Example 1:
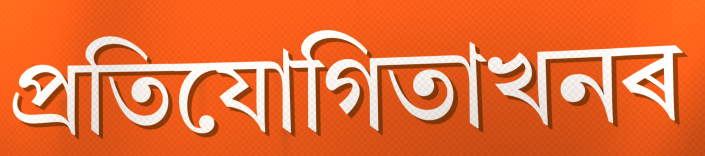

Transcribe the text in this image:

প্ৰতিযোগিতাখনৰ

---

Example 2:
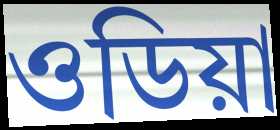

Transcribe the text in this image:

ওডিয়া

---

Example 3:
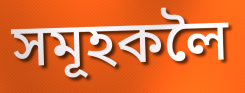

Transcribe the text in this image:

সমূহকলৈ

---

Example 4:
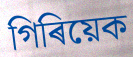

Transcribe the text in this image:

গিৰিয়েক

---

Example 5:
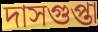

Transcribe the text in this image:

দাসগুপ্তা